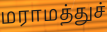
மராமத்துச்